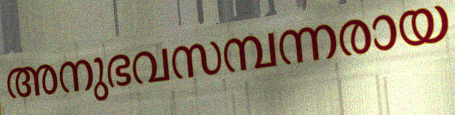
അനുഭവസമ്പന്നരായ